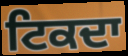
ਟਿਕਦਾ